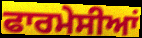
ਫਾਰਮੇਸੀਆਂ